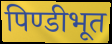
पिण्डीभूत